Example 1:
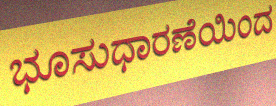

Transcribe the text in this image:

ಭೂಸುಧಾರಣೆಯಿಂದ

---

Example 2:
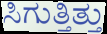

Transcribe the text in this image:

ಸಿಗುತ್ತಿತ್ತು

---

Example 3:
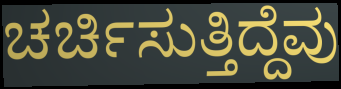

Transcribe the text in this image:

ಚರ್ಚಿಸುತ್ತಿದ್ದೆವು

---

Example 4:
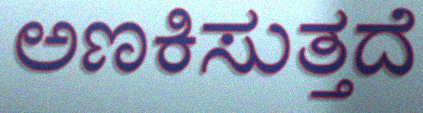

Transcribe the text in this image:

ಅಣಕಿಸುತ್ತದೆ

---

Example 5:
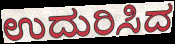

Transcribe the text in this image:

ಉದುರಿಸಿದ